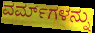
ವರ್ಮ್‌ಗಳನ್ನು